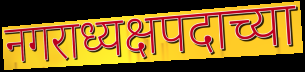
नगराध्यक्षपदाच्या